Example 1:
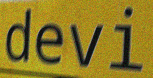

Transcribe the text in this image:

devi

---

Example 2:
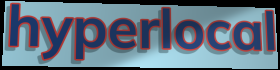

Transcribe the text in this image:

hyperlocal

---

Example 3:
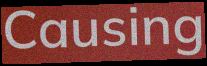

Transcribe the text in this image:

Causing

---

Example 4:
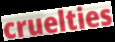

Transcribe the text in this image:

cruelties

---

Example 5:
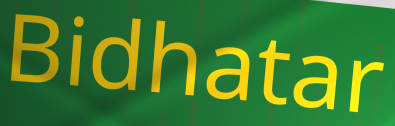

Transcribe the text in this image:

Bidhatar